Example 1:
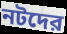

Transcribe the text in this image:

নটদের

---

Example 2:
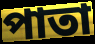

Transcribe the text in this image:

পাতা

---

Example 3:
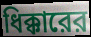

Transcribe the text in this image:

ধিক্কারের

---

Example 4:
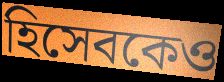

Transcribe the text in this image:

হিসেবকেও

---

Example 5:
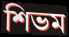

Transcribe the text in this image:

শিভম